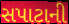
સપાટાની